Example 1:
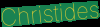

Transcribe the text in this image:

Christides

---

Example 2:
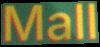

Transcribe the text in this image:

Mall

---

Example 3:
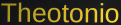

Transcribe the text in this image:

Theotonio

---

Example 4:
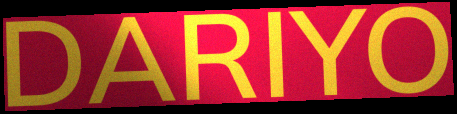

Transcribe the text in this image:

DARIYO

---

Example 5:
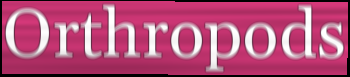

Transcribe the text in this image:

Orthropods